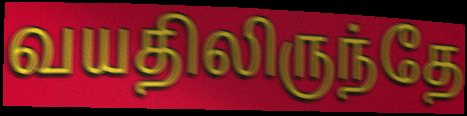
வயதிலிருந்தே